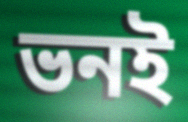
ভনই